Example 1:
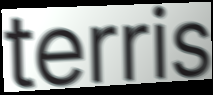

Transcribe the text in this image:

terris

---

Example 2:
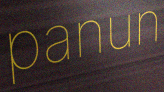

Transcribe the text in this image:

panun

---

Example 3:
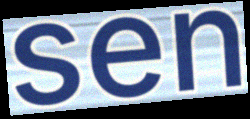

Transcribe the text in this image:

sen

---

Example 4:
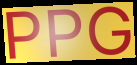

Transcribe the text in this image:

PPG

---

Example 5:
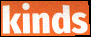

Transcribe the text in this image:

kinds